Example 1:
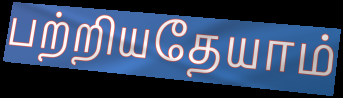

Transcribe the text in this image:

பற்றியதேயாம்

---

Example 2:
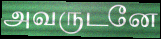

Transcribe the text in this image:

அவருடனே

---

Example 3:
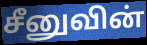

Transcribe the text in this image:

சீனுவின்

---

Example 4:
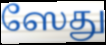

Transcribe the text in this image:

ஸேது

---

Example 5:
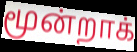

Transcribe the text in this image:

மூன்றாக்